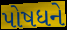
પોષધને